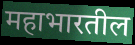
महाभारतील